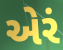
એરં